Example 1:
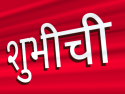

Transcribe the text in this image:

शुभीची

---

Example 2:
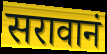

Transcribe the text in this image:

सरावानं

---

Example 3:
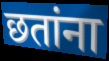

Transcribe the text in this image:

छतांना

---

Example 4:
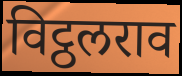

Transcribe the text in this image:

विट्ठलराव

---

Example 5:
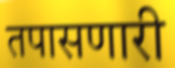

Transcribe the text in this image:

तपासणारी